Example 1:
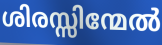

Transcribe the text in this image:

ശിരസ്സിന്മേൽ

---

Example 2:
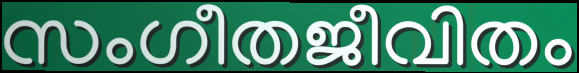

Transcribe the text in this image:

സംഗീതജീവിതം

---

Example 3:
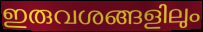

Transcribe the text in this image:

ഇരുവശങ്ങളിലും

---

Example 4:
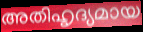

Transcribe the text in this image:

അതിഹൃദ്യമായ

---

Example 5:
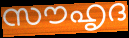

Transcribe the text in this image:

സൗഹൃദ